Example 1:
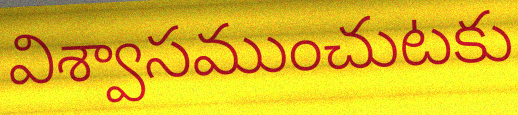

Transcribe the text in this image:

విశ్వాసముంచుటకు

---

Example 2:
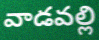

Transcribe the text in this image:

వాడవల్లి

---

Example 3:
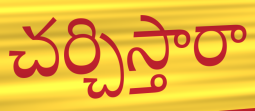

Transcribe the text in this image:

చర్చిస్తారా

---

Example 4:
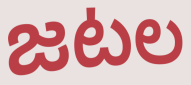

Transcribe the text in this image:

జటల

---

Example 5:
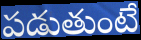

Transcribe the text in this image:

పడుతుంటే